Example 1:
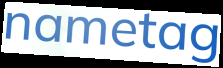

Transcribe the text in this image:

nametag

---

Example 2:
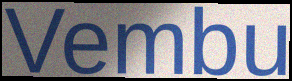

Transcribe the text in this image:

Vembu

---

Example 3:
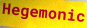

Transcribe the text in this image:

Hegemonic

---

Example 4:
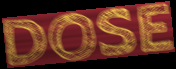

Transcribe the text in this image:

DOSE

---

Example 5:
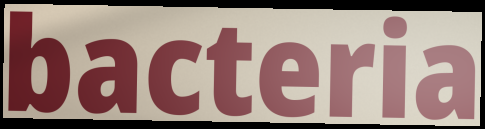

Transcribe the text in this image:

bacteria